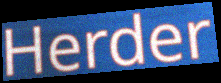
Herder